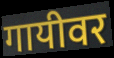
गायीवर